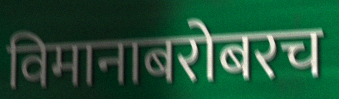
विमानाबरोबरच